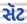
સૅટ